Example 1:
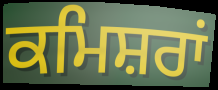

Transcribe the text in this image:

ਕਮਿਸ਼ਰਾਂ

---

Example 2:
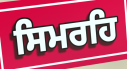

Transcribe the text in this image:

ਸਿਮਰਹਿ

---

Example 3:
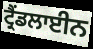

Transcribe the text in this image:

ਟ੍ਰੈਂਡਲਾਈਨ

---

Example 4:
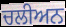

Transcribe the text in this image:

ਚਲੀਅਨ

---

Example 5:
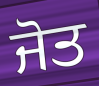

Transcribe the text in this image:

ਜੋਤ